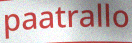
paatrallo